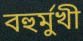
বহুর্মুখী